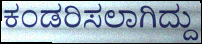
ಕಂಡರಿಸಲಾಗಿದ್ದು